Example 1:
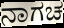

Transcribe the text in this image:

ನಾಗಚ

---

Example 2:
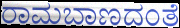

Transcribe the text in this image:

ರಾಮಬಾಣದಂತೆ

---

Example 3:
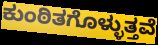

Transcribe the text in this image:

ಕುಂಠಿತಗೊಳ್ಳುತ್ತವೆ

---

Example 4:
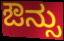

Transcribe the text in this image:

ಔನ್ಸು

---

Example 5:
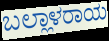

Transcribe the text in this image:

ಬಲ್ಲಾಳರಾಯ